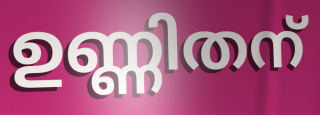
ഉണ്ണിതന്